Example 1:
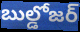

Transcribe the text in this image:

బుల్డోజర్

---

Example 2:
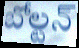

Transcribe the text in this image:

బోల్టన్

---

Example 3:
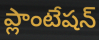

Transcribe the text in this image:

ప్లాంటేషన్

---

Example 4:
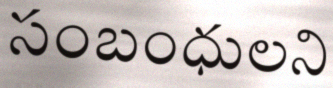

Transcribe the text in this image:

సంబంధులని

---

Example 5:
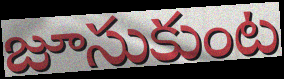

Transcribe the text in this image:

జూసుకుంట